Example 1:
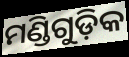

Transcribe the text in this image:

ମଣ୍ଡିଗୁଡ଼ିକ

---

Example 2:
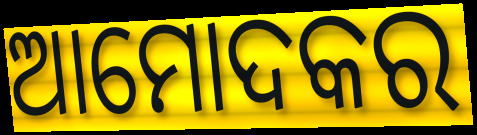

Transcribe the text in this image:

ଆମୋଦକର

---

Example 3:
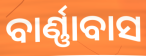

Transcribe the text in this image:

ବାର୍ଣ୍ଣାବାସ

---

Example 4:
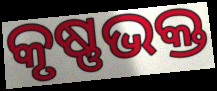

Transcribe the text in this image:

କୃଷ୍ଣଭକ୍ତ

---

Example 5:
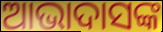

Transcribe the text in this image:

ଆଭାଦାସଙ୍କ